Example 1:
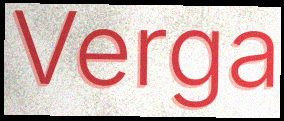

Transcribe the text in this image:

Verga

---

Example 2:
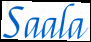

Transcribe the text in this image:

Saala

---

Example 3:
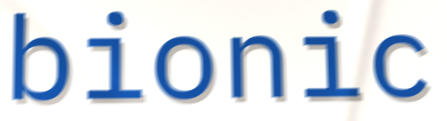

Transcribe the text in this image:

bionic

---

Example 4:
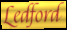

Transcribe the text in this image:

Ledford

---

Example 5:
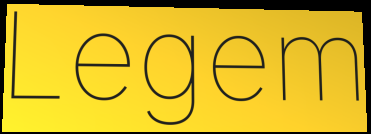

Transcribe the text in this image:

Legem